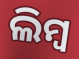
ଲିମ୍ବ